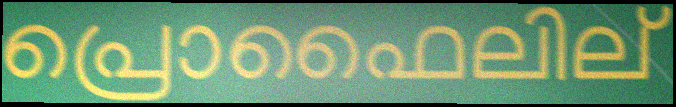
പ്രൊഫൈലില്